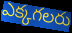
ఎక్కగలరు